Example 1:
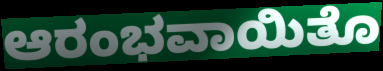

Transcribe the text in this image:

ಆರಂಭವಾಯಿತೊ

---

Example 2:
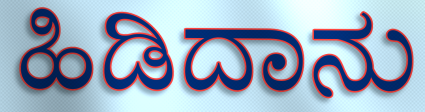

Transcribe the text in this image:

ಹಿಡಿದಾನು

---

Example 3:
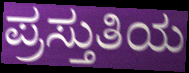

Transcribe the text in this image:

ಪ್ರಸ್ತುತಿಯ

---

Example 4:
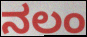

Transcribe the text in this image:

ನಲಂ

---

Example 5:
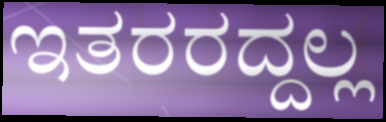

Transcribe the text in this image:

ಇತರರದ್ದಲ್ಲ